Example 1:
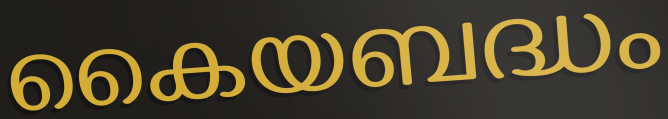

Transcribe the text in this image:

കൈയബദ്ധം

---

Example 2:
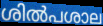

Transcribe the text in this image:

ശിൽപശാല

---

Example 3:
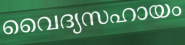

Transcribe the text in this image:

വൈദ്യസഹായം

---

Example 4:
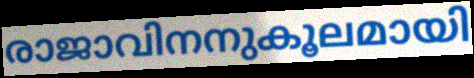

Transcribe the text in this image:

രാജാവിനനുകൂലമായി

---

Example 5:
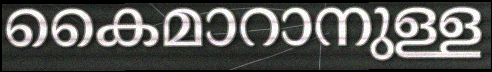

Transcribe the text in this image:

കൈമാറാനുള്ള